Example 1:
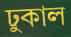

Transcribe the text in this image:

ঢুকাল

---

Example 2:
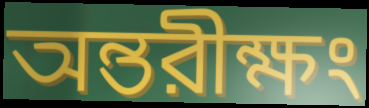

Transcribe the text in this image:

অন্তরীক্ষং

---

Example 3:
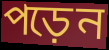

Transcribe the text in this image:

পড়েন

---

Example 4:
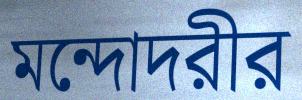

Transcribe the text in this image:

মন্দোদরীর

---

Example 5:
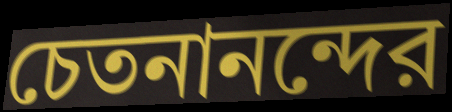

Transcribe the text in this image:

চেতনানন্দের